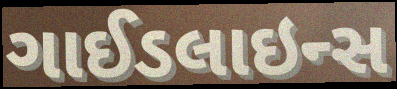
ગાઈડલાઇન્સ